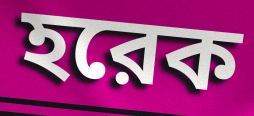
হরেক